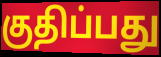
குதிப்பது